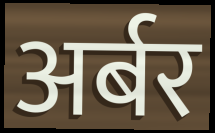
अर्बर